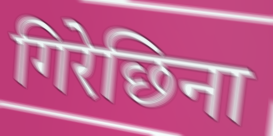
गिरेछिना